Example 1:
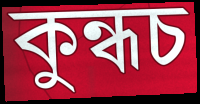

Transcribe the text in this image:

কুন্ধচ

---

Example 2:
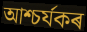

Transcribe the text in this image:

আশ্চৰ্যকৰ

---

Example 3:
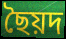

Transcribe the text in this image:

ছৈয়দ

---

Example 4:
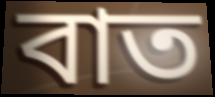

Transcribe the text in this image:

বাত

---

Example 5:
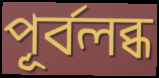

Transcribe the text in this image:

পূৰ্বলব্ধ